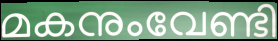
മകനുംവേണ്ടി